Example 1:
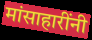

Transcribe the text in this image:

मांसाहारींनी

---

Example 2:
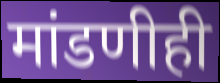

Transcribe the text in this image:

मांडणीही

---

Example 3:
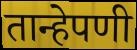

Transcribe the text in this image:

तान्हेपणी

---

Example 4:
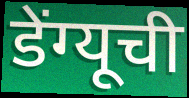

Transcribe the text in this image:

डेंग्यूची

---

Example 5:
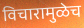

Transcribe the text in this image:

विचारामुळेच